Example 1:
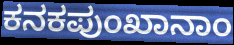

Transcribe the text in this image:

ಕನಕಪುಂಖಾನಾಂ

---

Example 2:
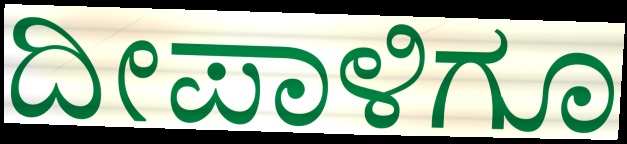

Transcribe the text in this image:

ದೀಪಾಳಿಗೂ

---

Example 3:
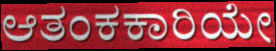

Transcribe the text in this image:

ಆತಂಕಕಾರಿಯೇ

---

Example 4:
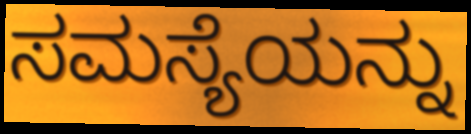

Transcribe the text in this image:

ಸಮಸ್ಯೆಯನ್ನು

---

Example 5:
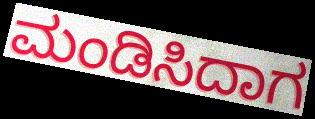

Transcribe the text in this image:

ಮಂಡಿಸಿದಾಗ